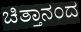
ಚಿತ್ತಾನಂದ